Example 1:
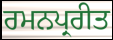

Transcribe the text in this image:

ਰਮਨਪ੍ਰਰੀਤ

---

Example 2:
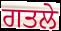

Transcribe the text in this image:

ਗਤਲੇ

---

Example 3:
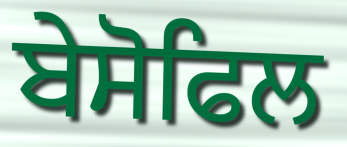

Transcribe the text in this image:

ਬੇਸੋਫਿਲ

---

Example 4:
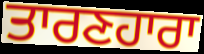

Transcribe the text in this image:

ਤਾਰਣਹਾਰਾ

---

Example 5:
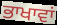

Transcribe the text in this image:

ਭਾਖਾਵਾਂ